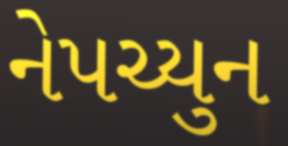
નેપચ્યુન